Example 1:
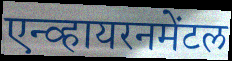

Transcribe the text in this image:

एन्व्हायरनमेंटल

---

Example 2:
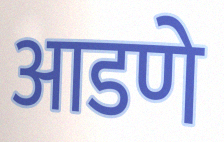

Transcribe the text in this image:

आडणे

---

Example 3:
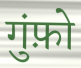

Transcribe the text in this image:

गुंफ़ो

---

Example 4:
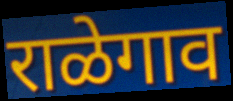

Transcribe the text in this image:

राळेगाव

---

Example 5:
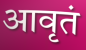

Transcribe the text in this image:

आवृतं